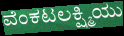
ವೆಂಕಟಲಕ್ಷ್ಮಿಯು